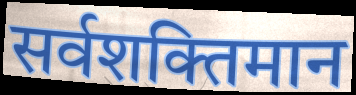
सर्वशक्‍तिमान